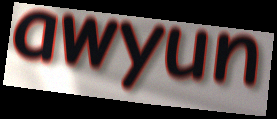
awyun